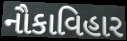
નૌકાવિહાર